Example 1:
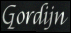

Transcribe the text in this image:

Gordijn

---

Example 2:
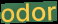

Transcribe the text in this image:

odor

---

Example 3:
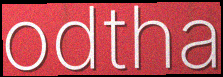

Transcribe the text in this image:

odtha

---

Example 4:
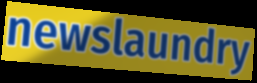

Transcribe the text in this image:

newslaundry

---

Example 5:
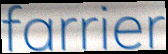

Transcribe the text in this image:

farrier